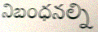
నిబంధనల్ని